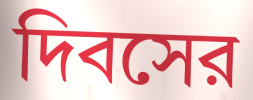
দিবসের